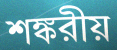
শঙ্করীয়